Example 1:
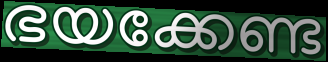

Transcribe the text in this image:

ഭയക്കേണ്ട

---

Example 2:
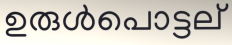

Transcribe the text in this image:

ഉരുൾപൊട്ടല്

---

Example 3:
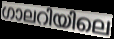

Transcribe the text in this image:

ഗാലറിയിലെ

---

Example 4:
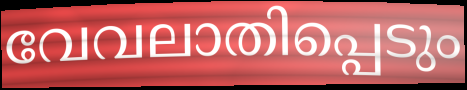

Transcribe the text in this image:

വേവലാതിപ്പെടും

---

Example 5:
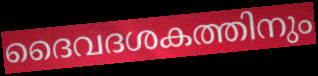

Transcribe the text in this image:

ദൈവദശകത്തിനും